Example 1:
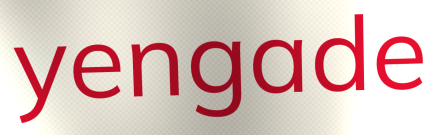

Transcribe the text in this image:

yengade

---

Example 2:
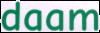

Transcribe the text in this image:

daam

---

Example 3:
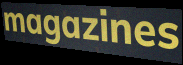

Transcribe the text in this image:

magazines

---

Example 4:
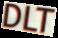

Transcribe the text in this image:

DLT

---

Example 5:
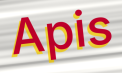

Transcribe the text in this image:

Apis